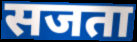
सजता